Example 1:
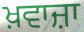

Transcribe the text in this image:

ਖ਼ਵਾਜ਼ਾ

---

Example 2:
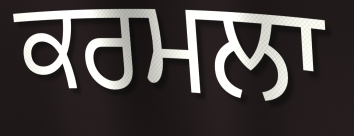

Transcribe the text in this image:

ਕਰਮਲਾ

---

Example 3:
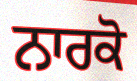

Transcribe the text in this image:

ਨਾਰਕੋ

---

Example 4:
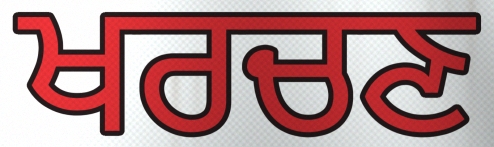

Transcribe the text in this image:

ਖਰਚਣ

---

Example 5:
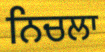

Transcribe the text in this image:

ਨਿਚਲਾ